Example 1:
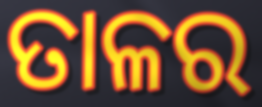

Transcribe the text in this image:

ତାଳର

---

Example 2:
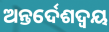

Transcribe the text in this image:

ଅନ୍ତର୍ଦେଶଦ୍ଵୟ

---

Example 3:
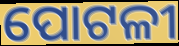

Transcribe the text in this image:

ପୋଟଳୀ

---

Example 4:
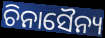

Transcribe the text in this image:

ଚିନାସୈନ୍ୟ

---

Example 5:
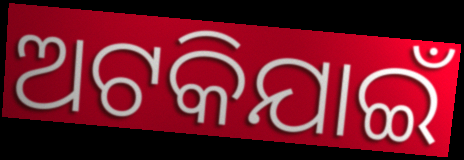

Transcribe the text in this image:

ଅଟକିଯାଇଁ